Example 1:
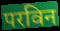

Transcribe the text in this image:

परविन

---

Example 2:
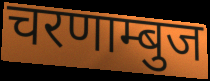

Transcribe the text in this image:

चरणाम्बुज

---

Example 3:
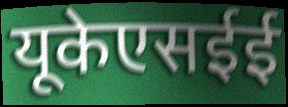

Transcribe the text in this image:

यूकेएसईई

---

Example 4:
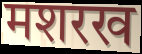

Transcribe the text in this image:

मशरख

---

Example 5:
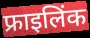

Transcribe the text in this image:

फ्राइलिंक